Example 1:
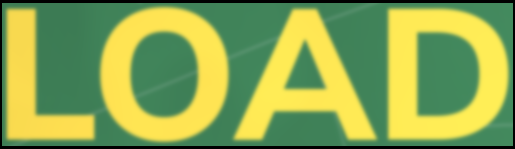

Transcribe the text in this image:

LOAD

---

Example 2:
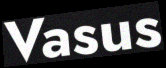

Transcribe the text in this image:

Vasus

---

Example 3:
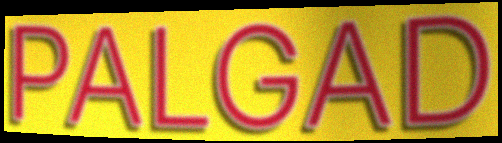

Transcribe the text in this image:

PALGAD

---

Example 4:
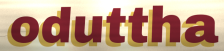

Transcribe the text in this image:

oduttha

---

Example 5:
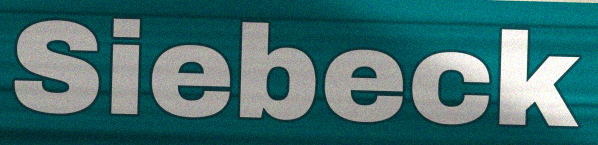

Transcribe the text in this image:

Siebeck